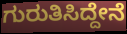
ಗುರುತಿಸಿದ್ದೇನೆ